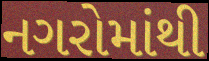
નગરોમાંથી